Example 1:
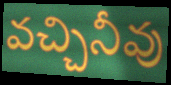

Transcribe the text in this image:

వచ్చినీవు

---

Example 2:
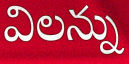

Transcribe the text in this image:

విలన్ను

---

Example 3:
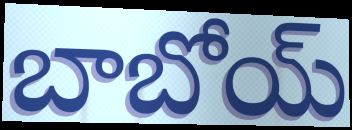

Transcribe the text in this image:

బాబోయ్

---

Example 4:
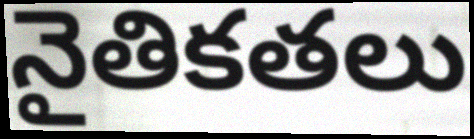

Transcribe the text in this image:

నైతికతలు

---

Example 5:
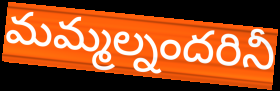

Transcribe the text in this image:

మమ్మల్నందరినీ